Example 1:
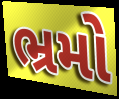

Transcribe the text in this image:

ભ્રમો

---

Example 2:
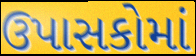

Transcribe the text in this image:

ઉપાસકોમાં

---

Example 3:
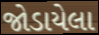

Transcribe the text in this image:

જોડાયેલા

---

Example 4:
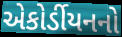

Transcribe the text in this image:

એકોર્ડીયનનો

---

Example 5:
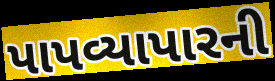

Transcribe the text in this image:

પાપવ્યાપારની